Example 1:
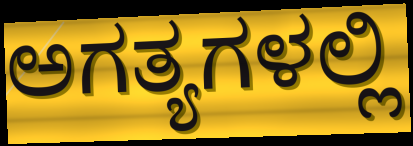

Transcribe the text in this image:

ಅಗತ್ಯಗಳಲ್ಲಿ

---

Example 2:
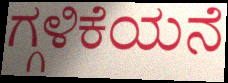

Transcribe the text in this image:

ಗ್ಗಳಿಕೆಯನೆ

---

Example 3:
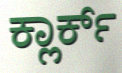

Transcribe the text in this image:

ಕ್ಲಾರ್ಕ್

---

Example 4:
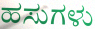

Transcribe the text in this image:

ಹಸುಗಳು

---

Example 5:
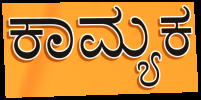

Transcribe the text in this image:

ಕಾಮ್ಯಕ